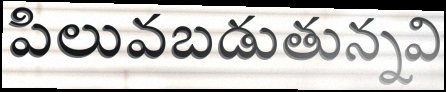
పిలువబడుతున్నవి